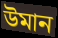
উমান